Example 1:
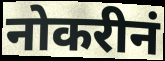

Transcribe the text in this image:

नोकरीनं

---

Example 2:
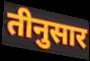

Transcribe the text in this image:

तीनुसार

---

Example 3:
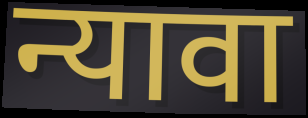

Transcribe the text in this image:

न्यावा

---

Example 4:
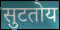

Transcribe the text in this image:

सुटतोय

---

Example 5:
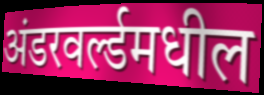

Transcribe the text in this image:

अंडरवर्ल्डमधील